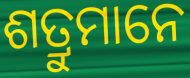
ଶତ୍ରୁମାନେ